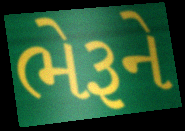
ભેરૂને